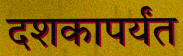
दशकापर्यंत